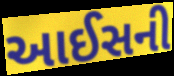
આઈસની